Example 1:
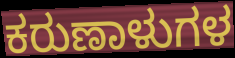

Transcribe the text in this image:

ಕರುಣಾಳುಗಳ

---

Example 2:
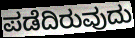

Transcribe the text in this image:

ಪಡೆದಿರುವುದು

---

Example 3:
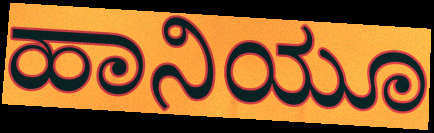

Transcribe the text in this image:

ಹಾನಿಯೂ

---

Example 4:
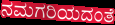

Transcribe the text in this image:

ನಮಗರಿಯದಂತೆ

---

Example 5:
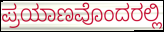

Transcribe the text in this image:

ಪ್ರಯಾಣವೊಂದರಲ್ಲಿ